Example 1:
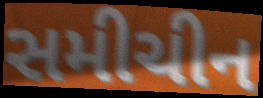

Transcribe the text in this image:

સમીચીન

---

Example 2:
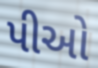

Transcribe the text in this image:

પીઓ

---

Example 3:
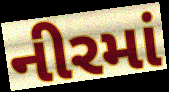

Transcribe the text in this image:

નીરમાં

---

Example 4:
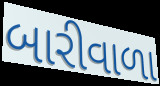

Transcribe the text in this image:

બારીવાળા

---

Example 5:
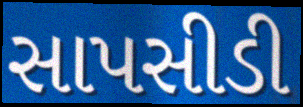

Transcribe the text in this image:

સાપસીડી